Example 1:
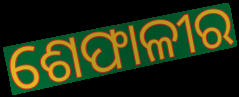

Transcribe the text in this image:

ଶେଫାଳୀର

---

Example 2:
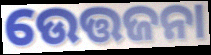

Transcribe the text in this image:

ଉେତ୍ତଜନା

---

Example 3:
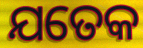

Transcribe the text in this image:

ଯତେକ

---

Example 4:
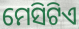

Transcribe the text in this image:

ମେସିଟିଏ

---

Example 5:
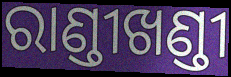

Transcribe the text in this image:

ରାଣ୍ଡୀଖଣ୍ଡୀ